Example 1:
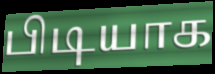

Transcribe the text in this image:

பிடியாக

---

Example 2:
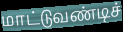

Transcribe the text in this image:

மாட்டுவண்டிச்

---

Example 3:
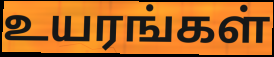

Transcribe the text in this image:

உயரங்கள்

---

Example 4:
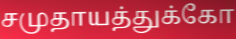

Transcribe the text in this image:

சமுதாயத்துக்கோ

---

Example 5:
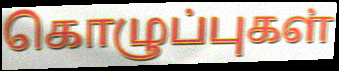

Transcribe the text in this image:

கொழுப்புகள்